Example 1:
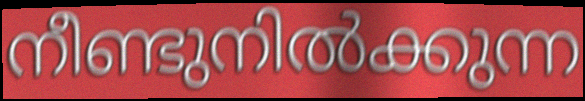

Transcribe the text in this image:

നീണ്ടുനിൽക്കുന്ന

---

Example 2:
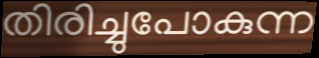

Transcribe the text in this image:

തിരിച്ചുപോകുന്ന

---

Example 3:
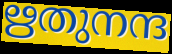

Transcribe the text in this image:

ഋതുനന്ദ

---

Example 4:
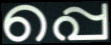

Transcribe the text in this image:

പ്പെ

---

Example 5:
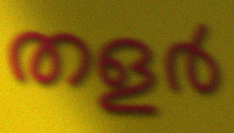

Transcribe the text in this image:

തളർ